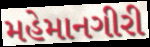
મહેમાનગીરી